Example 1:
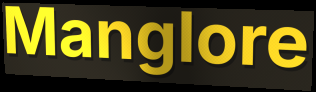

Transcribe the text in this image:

Manglore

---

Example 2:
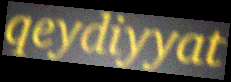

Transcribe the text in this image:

qeydiyyat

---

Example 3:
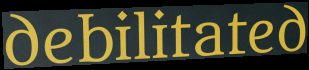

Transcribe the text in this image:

debilitated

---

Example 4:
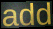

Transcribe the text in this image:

add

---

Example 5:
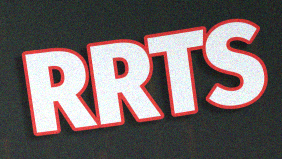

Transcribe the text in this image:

RRTS